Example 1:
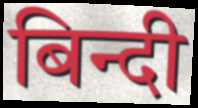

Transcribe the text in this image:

बिन्दी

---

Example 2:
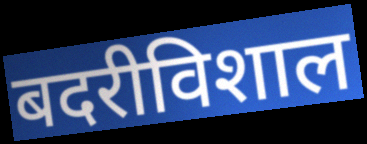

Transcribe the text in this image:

बदरीविशाल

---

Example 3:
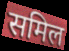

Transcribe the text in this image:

समिल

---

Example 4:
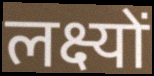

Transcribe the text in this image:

लक्ष्यों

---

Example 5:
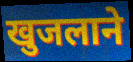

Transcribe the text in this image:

खुजलाने